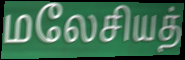
மலேசியத்